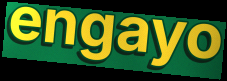
engayo